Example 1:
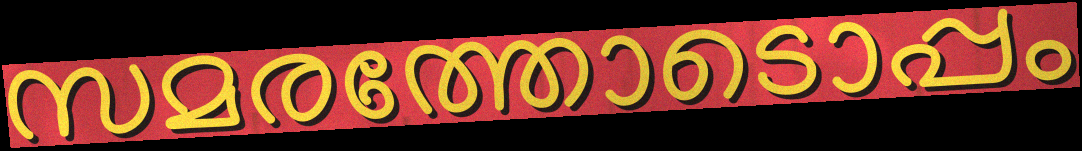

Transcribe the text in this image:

സമരത്തോടൊപ്പം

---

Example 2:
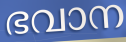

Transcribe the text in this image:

ഭവാന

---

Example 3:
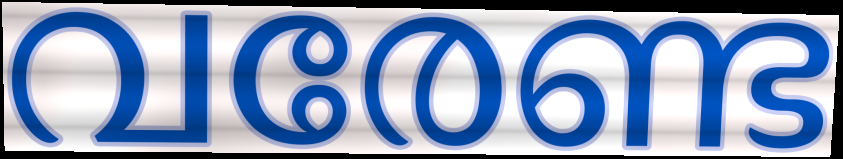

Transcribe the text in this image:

വരേണ്ട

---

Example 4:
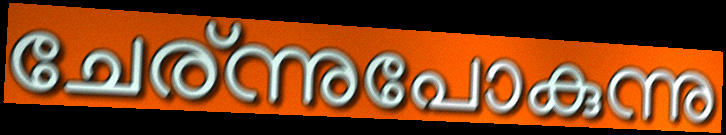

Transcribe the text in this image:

ചേര്ന്നുപോകുന്നു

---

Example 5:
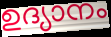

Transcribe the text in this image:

ഉദ്യാനം